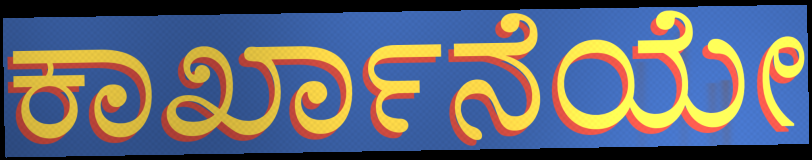
ಕಾರ್ಖಾನೆಯೇ